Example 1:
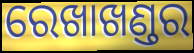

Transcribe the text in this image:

ରେଖାଖଣ୍ଡର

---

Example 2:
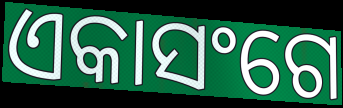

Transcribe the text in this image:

ଏକାସଂଗେ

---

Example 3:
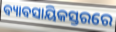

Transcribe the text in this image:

ବ୍ୟାବସାୟିକସ୍ତରରେ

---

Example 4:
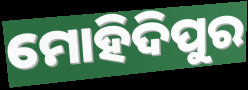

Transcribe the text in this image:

ମୋହିଦିପୁର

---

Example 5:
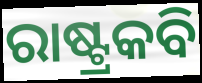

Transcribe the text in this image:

ରାଷ୍ଟ୍ରକବି